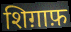
शिग़ाफ़